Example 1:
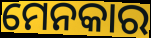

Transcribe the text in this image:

ମେନକାର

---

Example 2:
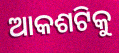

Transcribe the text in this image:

ଆକଶଟିକୁ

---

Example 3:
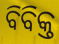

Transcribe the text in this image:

ବିବିକ୍ତ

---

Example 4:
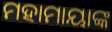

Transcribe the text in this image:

ମହାମାୟାଙ୍କ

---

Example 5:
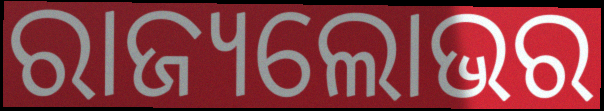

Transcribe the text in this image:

ରାଜ୍ୟଲୋଭର